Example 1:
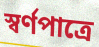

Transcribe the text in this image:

স্বর্ণপাত্রে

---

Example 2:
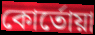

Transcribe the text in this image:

কোর্তোয়া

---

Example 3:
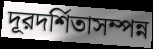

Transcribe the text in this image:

দূরদর্শিতাসম্পন্ন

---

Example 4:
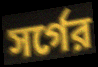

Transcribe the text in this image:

সর্গের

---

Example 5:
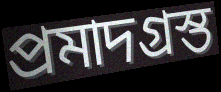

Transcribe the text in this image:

প্রমাদগ্রস্ত